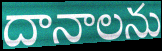
దానాలను